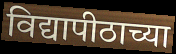
विद्यापीठाच्या